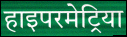
हाइपरमेट्रिया